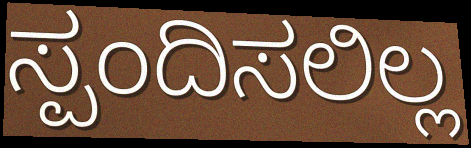
ಸ್ಪಂದಿಸಲಿಲ್ಲ